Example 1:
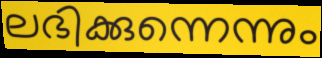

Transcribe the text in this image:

ലഭിക്കുന്നെന്നും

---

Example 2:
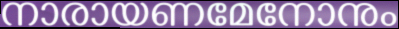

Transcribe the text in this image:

നാരായണമേനോനും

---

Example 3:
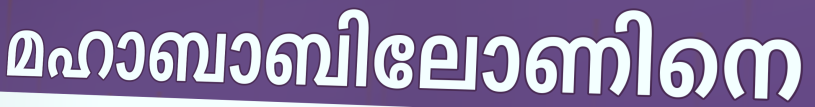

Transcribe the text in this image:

മഹാബാബിലോണിനെ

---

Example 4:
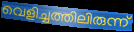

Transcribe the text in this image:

വെളിച്ചത്തിലിരുന്ന്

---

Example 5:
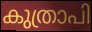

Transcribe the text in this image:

കുത്രാപി